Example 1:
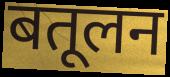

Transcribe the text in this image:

बतूलन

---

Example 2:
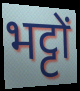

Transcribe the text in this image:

भट्टों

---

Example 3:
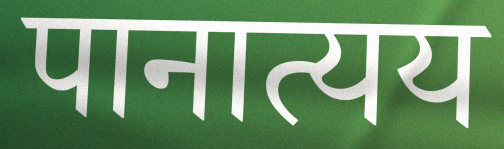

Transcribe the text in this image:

पानात्यय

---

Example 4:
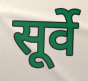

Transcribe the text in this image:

सूर्वे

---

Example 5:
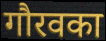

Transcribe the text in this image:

गौरवका